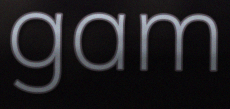
gam